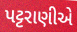
પટ્ટરાણીએ